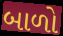
બાળો